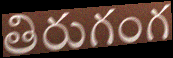
తిరుగంగ